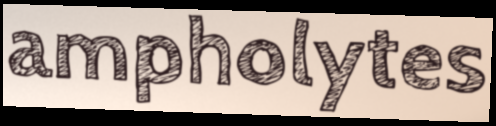
ampholytes